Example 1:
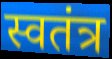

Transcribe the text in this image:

स्वतंत्र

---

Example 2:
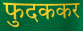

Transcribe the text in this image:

फुदककर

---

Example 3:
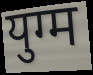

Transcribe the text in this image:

युग्म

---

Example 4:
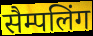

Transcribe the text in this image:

सैम्पलिंग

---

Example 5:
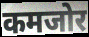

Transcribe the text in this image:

कमजोर